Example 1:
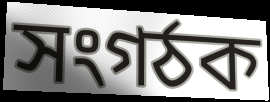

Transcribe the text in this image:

সংগঠক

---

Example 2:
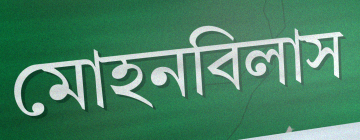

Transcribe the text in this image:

মোহনবিলাস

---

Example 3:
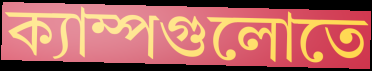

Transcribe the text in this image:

ক্যাম্পগুলোতে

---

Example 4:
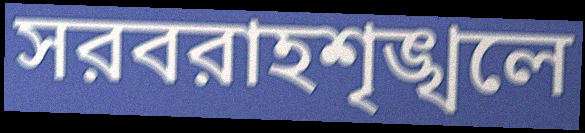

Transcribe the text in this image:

সরবরাহশৃঙ্খলে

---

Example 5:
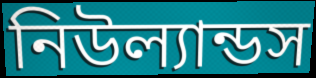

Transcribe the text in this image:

নিউল্যান্ডস